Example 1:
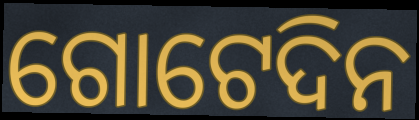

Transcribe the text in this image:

ଗୋଟେଦିନ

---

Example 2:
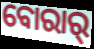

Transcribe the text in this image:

ବୋରାର୍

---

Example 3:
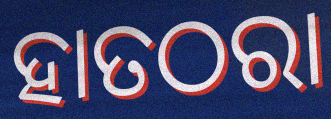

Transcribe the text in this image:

ହାତଠରା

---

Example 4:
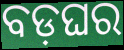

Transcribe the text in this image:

ବଡ଼ଘର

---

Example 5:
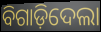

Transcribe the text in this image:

ବିଗାଡ଼ିଦେଲା